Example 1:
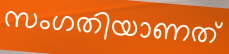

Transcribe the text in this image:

സംഗതിയാണത്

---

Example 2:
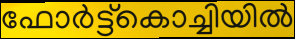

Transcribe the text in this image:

ഫോർട്ട്കൊച്ചിയിൽ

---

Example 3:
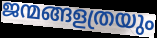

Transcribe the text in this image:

ജന്മങ്ങളത്രയും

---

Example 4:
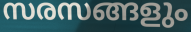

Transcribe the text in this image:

സരസങ്ങളും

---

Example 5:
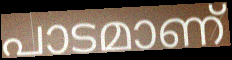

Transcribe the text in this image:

പാടമാണ്